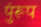
पुंरूप